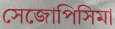
সেজোপিসিমা